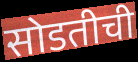
सोडतीची